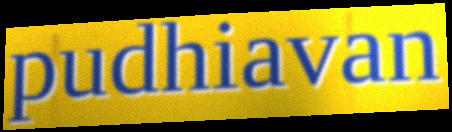
pudhiavan